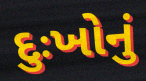
દુઃખોનું